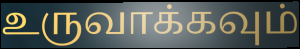
உருவாக்கவும்